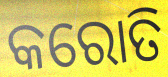
କରୋତି